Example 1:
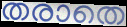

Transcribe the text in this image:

തരാതെ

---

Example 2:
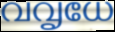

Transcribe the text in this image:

വവൃധേ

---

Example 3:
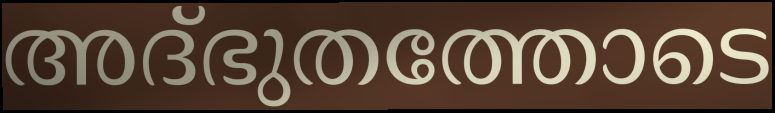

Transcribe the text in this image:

അദ്ഭുതത്തോടെ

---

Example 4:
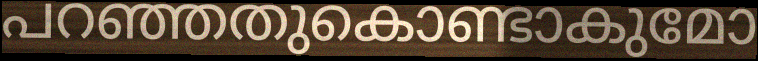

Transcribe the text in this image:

പറഞ്ഞതുകൊണ്ടാകുമോ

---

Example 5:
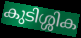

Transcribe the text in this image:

കുടിശ്ശിക